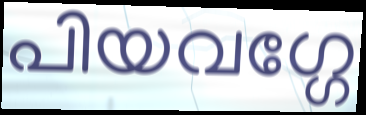
പിയവഗ്ഗേ